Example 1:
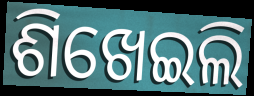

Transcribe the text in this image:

ଶିଖେଇଲି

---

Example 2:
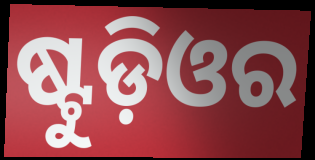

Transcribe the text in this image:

ଷ୍ଟୁଡ଼ିଓର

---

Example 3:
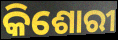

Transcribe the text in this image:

କିଶୋରୀ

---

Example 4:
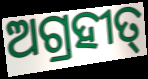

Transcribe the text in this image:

ଅଗ୍ରହୀତ୍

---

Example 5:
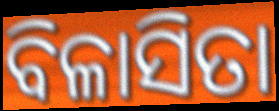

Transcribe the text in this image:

ବିଳାସିତା